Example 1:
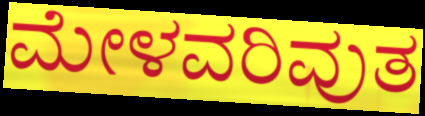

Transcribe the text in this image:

ಮೇಳವರಿವುತ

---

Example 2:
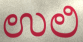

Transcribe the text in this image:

ಉಲಿ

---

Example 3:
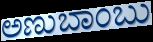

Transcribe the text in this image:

ಅಣುಬಾಂಬು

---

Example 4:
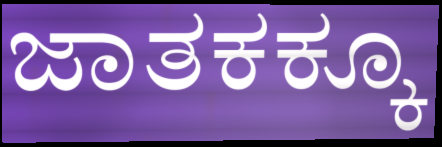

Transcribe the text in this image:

ಜಾತಕಕ್ಕೂ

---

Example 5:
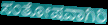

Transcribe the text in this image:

ಸಂತೋಷವಾಗಿರಿ